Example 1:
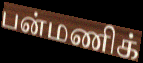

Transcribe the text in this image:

பன்மணிக்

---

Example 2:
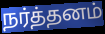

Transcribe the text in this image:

நர்த்தனம்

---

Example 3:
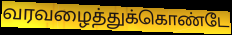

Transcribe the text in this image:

வரவழைத்துக்கொண்டே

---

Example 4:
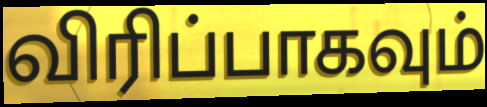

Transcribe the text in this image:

விரிப்பாகவும்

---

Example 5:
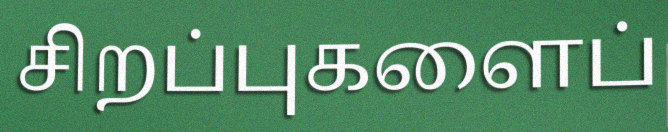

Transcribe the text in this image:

சிறப்புகளைப்